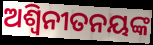
ଅଶ୍ୱିନୀତନୟଙ୍କ